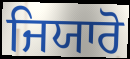
ਜਿਯਾਰੋ